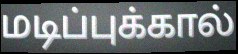
மடிப்புக்கால்